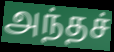
அந்தச்